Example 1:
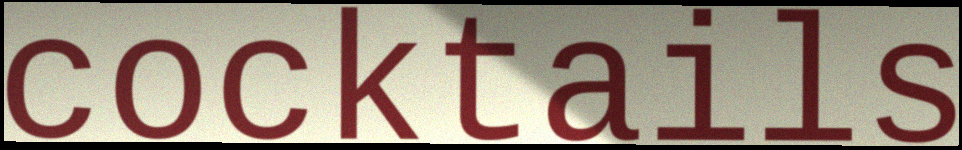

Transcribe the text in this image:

cocktails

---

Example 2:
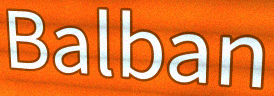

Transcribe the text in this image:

Balban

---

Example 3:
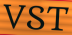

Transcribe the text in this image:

VST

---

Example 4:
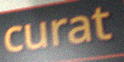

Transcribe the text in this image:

curat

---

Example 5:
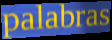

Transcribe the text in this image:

palabras